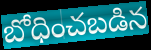
బోధించబడిన